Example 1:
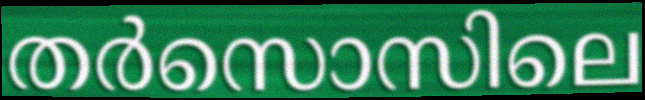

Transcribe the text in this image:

തർസൊസിലെ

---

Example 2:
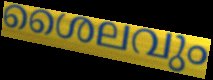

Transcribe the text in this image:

ശൈലവും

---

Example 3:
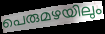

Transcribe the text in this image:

പെരുമഴയിലും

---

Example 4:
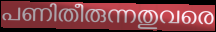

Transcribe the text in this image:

പണിതീരുന്നതുവരെ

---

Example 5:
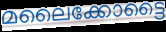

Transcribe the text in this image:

മലൈക്കോട്ടൈ